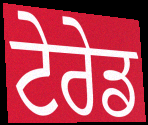
ਟੇਰੇਡ